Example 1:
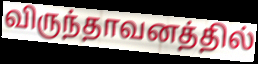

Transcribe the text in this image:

விருந்தாவனத்தில்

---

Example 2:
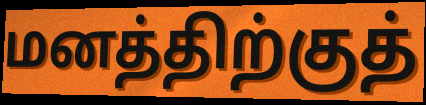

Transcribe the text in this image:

மனத்திற்குத்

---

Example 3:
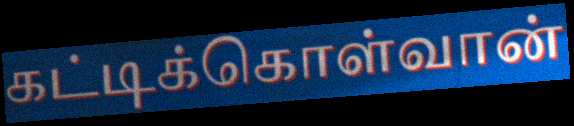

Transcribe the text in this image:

கட்டிக்கொள்வான்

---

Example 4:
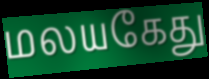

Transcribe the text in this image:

மலயகேது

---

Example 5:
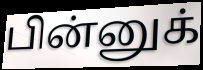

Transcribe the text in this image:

பின்னுக்